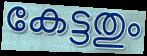
കേട്ടതും